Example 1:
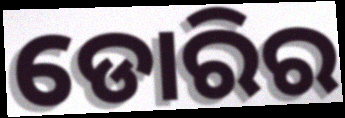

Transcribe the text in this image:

ଡୋରିର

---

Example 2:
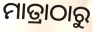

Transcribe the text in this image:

ମାତ୍ରାଠାରୁ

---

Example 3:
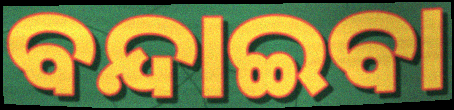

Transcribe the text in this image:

ବନ୍ଦାଇବା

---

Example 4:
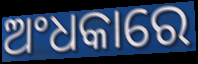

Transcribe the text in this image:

ଅଂଧକାରେ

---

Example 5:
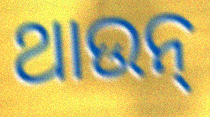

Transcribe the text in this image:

ଥାଉନ୍